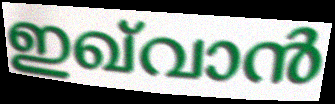
ഇഖ്‌വാൻ